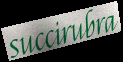
succirubra